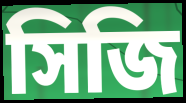
সিজি